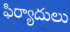
ఫిర్యాదులు